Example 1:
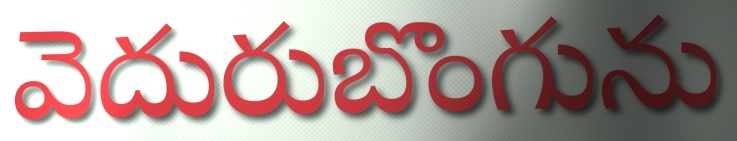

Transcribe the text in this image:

వెదురుబొంగును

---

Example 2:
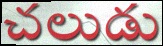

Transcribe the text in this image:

చలుడు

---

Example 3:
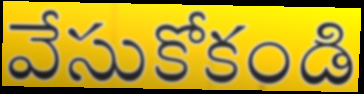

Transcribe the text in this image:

వేసుకోకండి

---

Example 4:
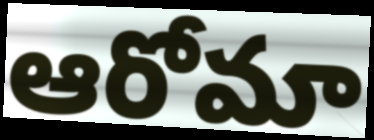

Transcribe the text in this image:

ఆరోమా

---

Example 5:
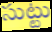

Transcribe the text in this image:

సుట్టు